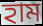
হাম